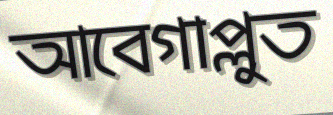
আবেগাপ্লুত